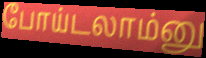
போய்டலாம்னு